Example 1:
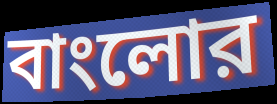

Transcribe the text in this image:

বাংলোর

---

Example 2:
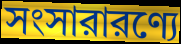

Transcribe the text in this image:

সংসারারণ্যে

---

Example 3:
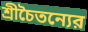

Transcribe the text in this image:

শ্রীচৈতন্যের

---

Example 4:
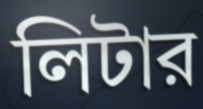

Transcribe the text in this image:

লিটার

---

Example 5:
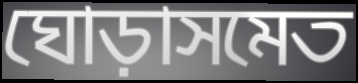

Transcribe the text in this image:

ঘোড়াসমেত